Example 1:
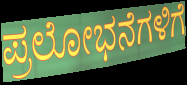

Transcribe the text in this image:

ಪ್ರಲೋಭನೆಗಳಿಗೆ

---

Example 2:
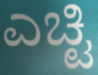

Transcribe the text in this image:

ಎಚ್ಟಿ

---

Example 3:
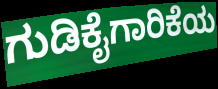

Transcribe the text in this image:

ಗುಡಿಕೈಗಾರಿಕೆಯ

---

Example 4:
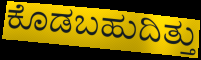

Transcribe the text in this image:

ಕೊಡಬಹುದಿತ್ತು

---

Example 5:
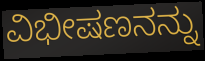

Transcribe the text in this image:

ವಿಭೀಷಣನನ್ನು